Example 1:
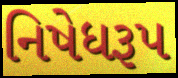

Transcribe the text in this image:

નિષેધરૂપ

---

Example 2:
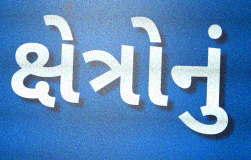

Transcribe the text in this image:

ક્ષેત્રોનું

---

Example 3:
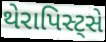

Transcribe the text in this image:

થેરાપિસ્ટ્સે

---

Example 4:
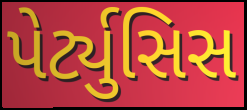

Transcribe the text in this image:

પેર્ટ્યુસિસ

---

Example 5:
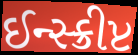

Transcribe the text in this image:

ઈન્સ્ક્રીપ્ટ